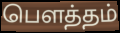
பௌத்தம்